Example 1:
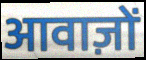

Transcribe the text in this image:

आवाज़ों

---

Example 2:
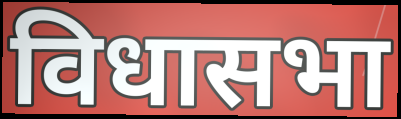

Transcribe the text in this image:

विधासभा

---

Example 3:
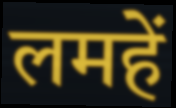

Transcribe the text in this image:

लमहें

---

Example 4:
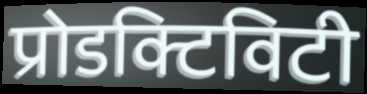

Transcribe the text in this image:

प्रोडक्टिविटी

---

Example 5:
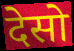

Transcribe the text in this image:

देसो